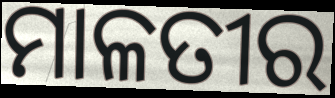
ମାଳତୀର